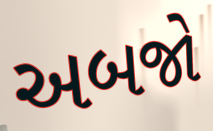
અબજો